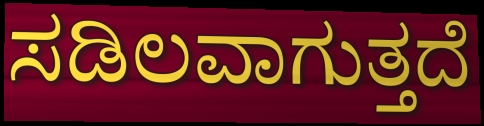
ಸಡಿಲವಾಗುತ್ತದೆ